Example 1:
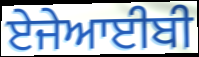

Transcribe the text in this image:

ਏਜੇਆਈਬੀ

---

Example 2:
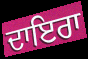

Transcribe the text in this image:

ਦਾਇਰਾ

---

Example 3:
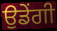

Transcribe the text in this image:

ਉਡੇਂਗੀ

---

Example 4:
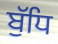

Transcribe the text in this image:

ਬੁੱਧਿ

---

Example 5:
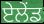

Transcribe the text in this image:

ਏਲੇਂਡ